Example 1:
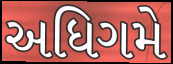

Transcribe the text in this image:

અધિગમે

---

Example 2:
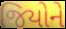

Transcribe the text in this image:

જિયોને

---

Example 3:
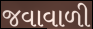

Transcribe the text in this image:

જવાવાળી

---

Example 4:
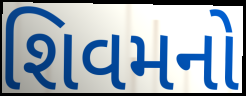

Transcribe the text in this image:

શિવમનો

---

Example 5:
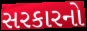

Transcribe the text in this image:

સરકારનો